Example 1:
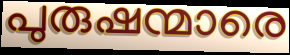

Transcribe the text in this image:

പുരുഷന്മാരെ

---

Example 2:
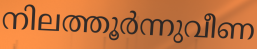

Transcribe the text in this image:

നിലത്തൂർന്നുവീണ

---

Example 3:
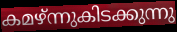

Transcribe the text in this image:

കമഴ്ന്നുകിടക്കുന്നു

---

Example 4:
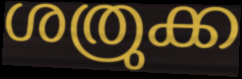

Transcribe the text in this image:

ശത്രുക്ക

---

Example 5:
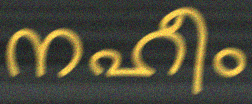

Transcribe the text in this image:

നഹീം